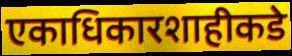
एकाधिकारशाहीकडे